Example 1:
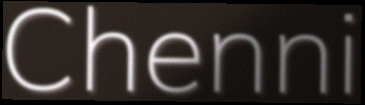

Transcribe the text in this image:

Chenni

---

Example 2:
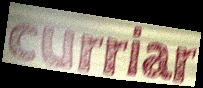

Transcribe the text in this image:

curriar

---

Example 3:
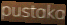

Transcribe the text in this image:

pustaka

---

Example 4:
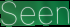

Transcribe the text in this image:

Seen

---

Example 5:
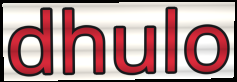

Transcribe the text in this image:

dhulo